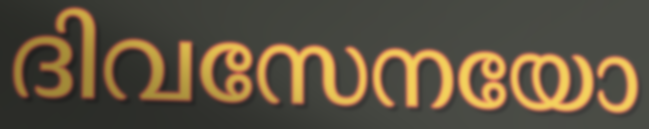
ദിവസേനയോ